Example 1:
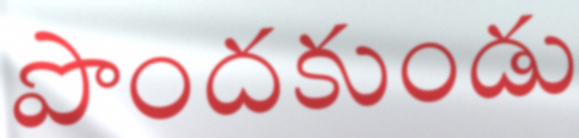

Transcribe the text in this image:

పొందకుండు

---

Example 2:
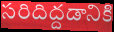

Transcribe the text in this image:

సరిదిద్దడానికి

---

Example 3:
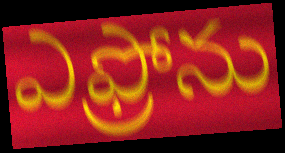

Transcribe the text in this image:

ఎఫ్రోను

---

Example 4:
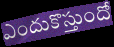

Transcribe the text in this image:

ఎందుకొస్తుందో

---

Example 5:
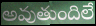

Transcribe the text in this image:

అవుతుందిలే